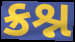
ક્રશ્ન